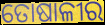
ତୋଷାଳୀର